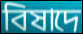
বিষাদে